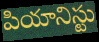
పియానిస్టు